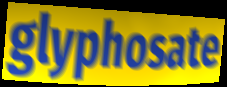
glyphosate